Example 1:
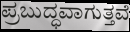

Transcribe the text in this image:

ಪ್ರಬುದ್ಧವಾಗುತ್ತವೆ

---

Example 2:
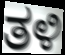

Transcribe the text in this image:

ತಳಿ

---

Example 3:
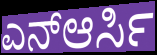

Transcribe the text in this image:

ಎನ್ಆರ್ಸಿ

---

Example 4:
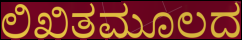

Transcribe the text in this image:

ಲಿಖಿತಮೂಲದ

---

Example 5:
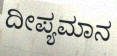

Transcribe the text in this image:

ದೀಪ್ಯಮಾನ